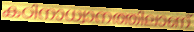
കഠിനാധ്വാനത്തിലാണ്